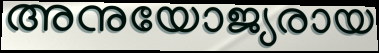
അനുയോജ്യരായ